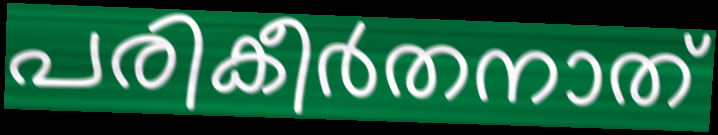
പരികീർതനാത്